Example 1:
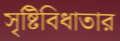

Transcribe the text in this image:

সৃষ্টিবিধাতার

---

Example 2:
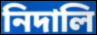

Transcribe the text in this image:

নিদালি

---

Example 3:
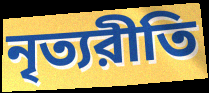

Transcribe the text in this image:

নৃত্যরীতি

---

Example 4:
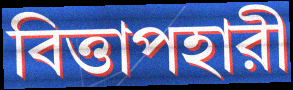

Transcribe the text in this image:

বিত্তাপহারী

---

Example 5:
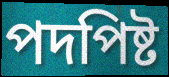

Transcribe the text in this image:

পদপিষ্ট